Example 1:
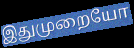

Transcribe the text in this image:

இதுமுறையோ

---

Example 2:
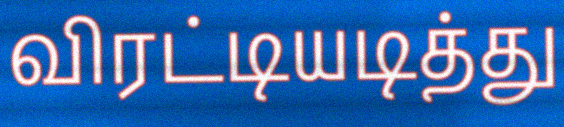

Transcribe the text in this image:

விரட்டியடித்து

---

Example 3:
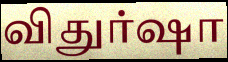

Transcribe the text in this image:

விதுர்ஷா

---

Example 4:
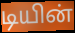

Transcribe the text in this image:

டியின்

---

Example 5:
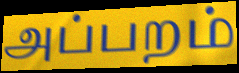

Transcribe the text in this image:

அப்பறம்